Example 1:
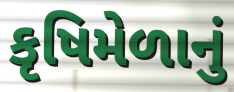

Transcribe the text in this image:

કૃષિમેળાનું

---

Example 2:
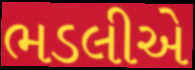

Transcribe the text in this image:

ભડલીએ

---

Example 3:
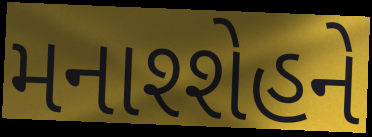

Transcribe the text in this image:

મનાશ્શેહને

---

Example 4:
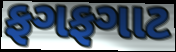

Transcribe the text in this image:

ફગફગાટ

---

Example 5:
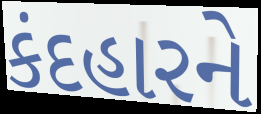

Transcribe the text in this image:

કંદહારને